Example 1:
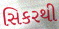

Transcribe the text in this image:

સિકરથી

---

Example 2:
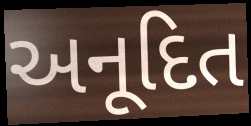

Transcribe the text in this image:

અનૂદિત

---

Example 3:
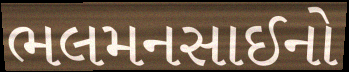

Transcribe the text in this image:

ભલમનસાઈનો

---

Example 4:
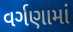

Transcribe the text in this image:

વર્ગણામાં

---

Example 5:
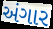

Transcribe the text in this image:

અંગાર